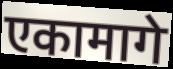
एकामागे